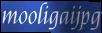
mooligaijpg